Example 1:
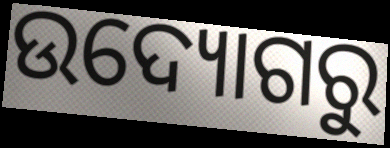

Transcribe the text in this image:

ଉଦ୍ୟୋଗରୁ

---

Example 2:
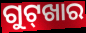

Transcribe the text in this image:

ଗୁଟ୍‌ଖାର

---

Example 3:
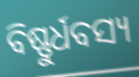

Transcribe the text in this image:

ବିଷ୍ଣୁର୍ଧବସ୍ୟ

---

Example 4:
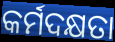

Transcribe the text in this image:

କର୍ମଦକ୍ଷତା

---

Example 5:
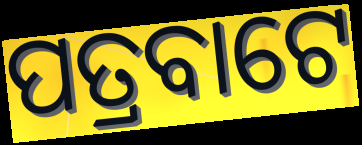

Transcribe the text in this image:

ପତ୍ରବାଟେ